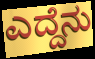
ಎದ್ದೆನು